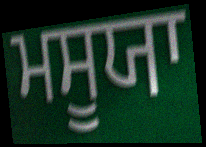
ਮਸੂਯਾ